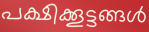
പക്ഷിക്കൂട്ടങ്ങൾ